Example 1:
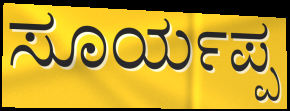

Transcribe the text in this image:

ಸೂರ್ಯಪ್ಪ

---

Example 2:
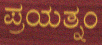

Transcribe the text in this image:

ಪ್ರಯತ್ನಂ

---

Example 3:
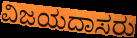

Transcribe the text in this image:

ವಿಜಯದಾಸರು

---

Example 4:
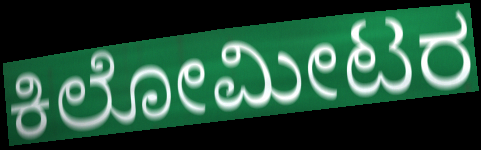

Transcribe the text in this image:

ಕಿಲೋಮೀಟರ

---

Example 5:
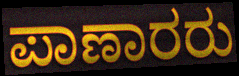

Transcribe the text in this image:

ಪಾಣಾರರು